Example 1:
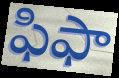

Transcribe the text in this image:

ఫిఫా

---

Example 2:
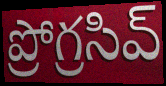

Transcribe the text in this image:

ప్రోగ్రసివ్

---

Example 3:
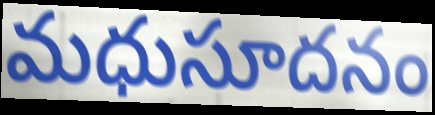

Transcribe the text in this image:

మధుసూదనం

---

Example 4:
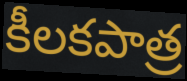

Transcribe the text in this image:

కీలకపాత్ర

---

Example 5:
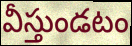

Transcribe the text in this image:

వీస్తుండటం